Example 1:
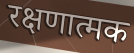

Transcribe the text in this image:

रक्षणात्मक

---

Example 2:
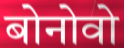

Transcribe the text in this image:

बोनोवो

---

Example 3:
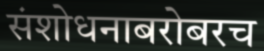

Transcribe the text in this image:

संशोधनाबरोबरच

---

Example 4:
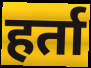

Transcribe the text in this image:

हर्ता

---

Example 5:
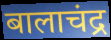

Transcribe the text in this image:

बालाचंद्र